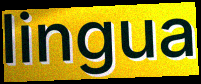
lingua